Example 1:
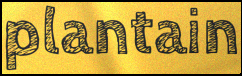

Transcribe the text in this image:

plantain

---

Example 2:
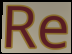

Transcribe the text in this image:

Re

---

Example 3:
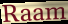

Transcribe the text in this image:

Raam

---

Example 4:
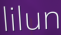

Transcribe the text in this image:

lilun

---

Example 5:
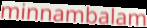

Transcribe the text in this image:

minnambalam